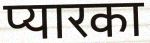
प्यारका